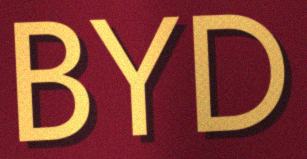
BYD